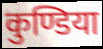
कुण्डिया